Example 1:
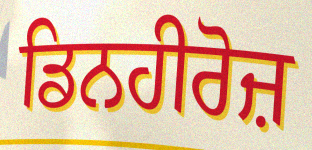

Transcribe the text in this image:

ਡਿਨਹੀਰੋਜ਼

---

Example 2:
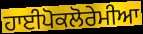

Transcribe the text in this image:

ਹਾਈਪੋਕਲੋਰੇਮੀਆ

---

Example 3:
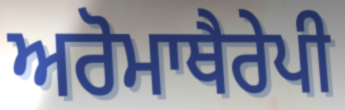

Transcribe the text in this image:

ਅਰੋਮਾਥੈਰੇਪੀ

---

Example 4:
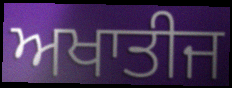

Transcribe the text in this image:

ਅਖਾਤੀਜ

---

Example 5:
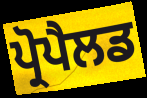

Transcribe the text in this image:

ਪ੍ਰੋਪੈਲਡ